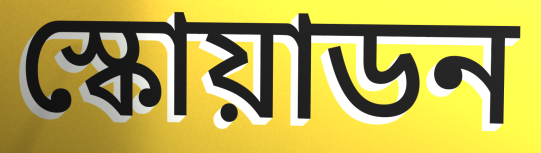
স্কোয়াডন